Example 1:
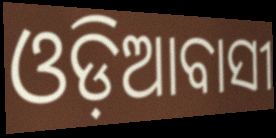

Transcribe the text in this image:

ଓଡ଼ିଆବାସୀ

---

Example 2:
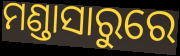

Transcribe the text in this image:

ମଣ୍ଡାସାରୁରେ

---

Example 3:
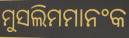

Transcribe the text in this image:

ମୁସଲିମମାନଂକ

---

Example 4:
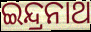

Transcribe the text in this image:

ଇନ୍ଦ୍ରନାଥ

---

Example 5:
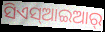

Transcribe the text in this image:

ସିଏସ୍ଆଇଆର୍